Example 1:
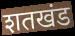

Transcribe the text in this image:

शतखंड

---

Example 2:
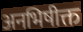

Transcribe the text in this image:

अनभिषीक्त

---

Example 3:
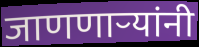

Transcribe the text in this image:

जाणणाऱ्यांनी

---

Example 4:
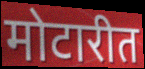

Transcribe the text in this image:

मोटारीत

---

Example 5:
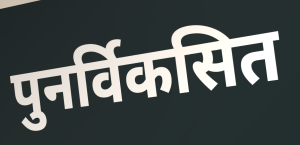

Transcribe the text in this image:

पुनर्विकसित